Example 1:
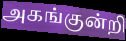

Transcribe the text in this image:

அகங்குன்றி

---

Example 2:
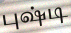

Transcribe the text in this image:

புஷ்டி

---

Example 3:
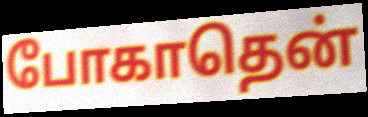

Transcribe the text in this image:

போகாதென்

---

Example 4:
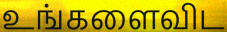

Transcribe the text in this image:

உங்களைவிட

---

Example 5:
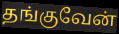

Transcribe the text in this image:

தங்குவேன்